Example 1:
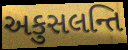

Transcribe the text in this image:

અકુસલન્તિ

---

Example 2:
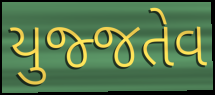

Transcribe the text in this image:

યુજ્જતેવ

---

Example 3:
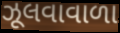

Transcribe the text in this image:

ઝૂલવાવાળા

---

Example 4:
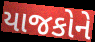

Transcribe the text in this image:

યાજકોને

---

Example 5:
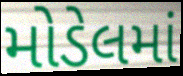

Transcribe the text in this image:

મોડેલમાં